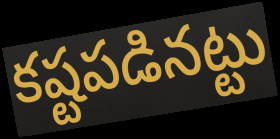
కష్టపడినట్టు